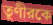
তূণীরকে